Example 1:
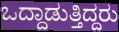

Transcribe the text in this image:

ಒದ್ದಾಡುತ್ತಿದ್ದರು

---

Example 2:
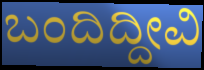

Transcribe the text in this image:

ಬಂದಿದ್ದೀವಿ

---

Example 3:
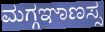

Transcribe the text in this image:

ಮಗ್ಗಞಾಣಸ್ಸ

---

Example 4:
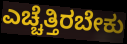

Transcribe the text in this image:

ಎಚ್ಚೆತ್ತಿರಬೇಕು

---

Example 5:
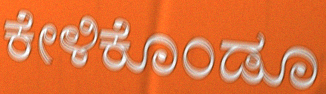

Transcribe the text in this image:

ಕೇಳಿಕೊಂಡೂ